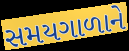
સમયગાળાને